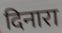
दिनारा